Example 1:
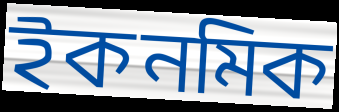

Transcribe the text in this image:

ইকনমিক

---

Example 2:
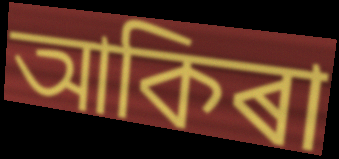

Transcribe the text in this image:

আকিৰা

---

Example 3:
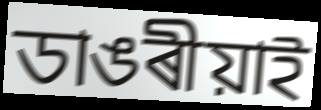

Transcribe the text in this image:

ডাঙৰীয়াই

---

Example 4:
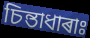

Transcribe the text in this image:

চিন্তাধাৰাঃ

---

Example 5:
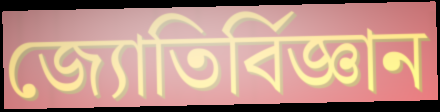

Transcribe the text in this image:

জ্যোতিৰ্বিজ্ঞান